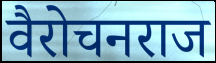
वैरोचनराज